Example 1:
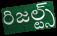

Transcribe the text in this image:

రిజల్ట్స్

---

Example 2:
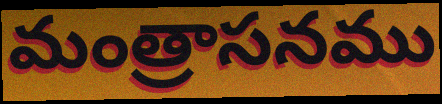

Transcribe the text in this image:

మంత్రాసనము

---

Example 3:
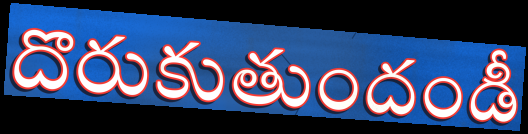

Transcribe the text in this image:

దొరుకుతుందండీ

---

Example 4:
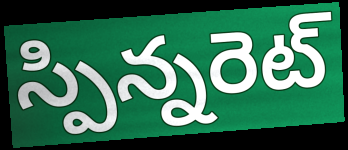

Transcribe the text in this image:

స్పిన్నరెట్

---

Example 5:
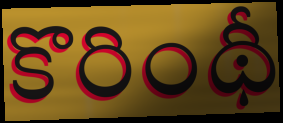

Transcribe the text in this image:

కొరింథీ